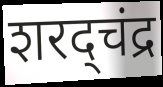
शरद्चंद्र